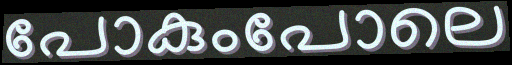
പോകുംപോലെ